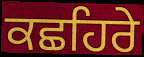
ਕਛਹਿਰੇ